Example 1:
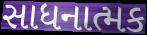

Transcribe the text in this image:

સાધનાત્મક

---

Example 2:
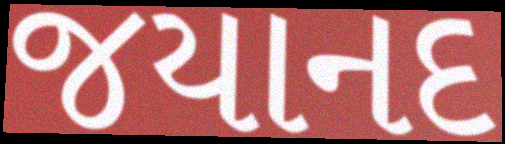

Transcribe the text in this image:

જયાનદ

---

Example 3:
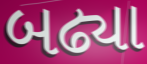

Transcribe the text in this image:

બઢ્યા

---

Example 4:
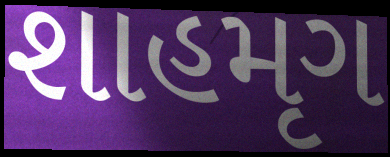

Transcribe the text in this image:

શાહમૃગ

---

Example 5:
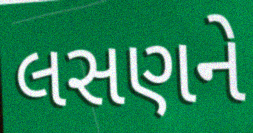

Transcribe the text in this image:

લસણને